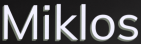
Miklos